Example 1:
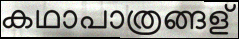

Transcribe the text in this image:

കഥാപാത്രങ്ങള്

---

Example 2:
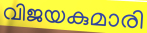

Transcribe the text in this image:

വിജയകുമാരി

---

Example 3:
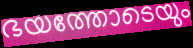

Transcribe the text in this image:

ഭയത്തോടെയും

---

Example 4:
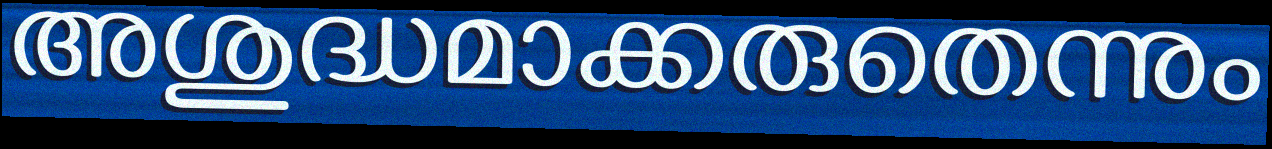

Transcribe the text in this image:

അശുദ്ധമാക്കരുതെന്നും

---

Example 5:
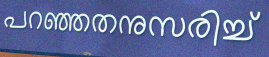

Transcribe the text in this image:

പറഞ്ഞതനുസരിച്ച്